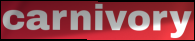
carnivory